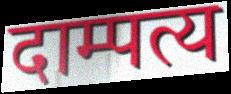
दाम्पत्य